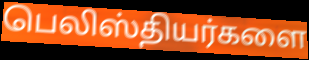
பெலிஸ்தியர்களை